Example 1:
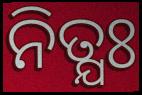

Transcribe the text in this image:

ନିତ୍ଯଃ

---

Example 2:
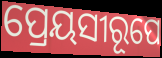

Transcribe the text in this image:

ପ୍ରେୟସୀରୂପେ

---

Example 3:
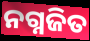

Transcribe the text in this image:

ନଗ୍ନଜିତ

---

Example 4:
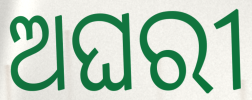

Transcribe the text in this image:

ଅଘରୀ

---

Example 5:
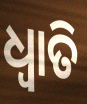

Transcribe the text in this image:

ଧ୍ବାତି